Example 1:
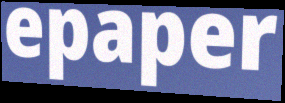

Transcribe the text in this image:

epaper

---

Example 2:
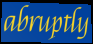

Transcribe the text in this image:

abruptly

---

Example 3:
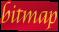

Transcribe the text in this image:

bitmap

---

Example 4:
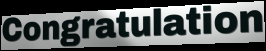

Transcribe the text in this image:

Congratulation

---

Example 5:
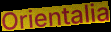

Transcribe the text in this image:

Orientalia